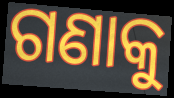
ଗଣାକୁ